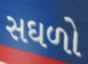
સઘળો